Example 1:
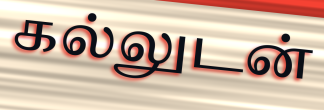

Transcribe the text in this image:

கல்லுடன்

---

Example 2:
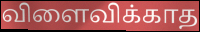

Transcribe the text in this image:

விளைவிக்காத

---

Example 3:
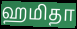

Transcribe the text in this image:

ஹமிதா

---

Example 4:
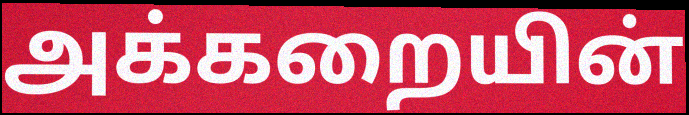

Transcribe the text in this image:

அக்கறையின்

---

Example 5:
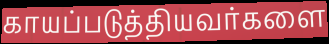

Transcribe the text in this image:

காயப்படுத்தியவர்களை